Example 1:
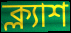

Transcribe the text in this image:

ক্ল্যাশ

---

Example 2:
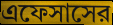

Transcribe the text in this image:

এফেসাসের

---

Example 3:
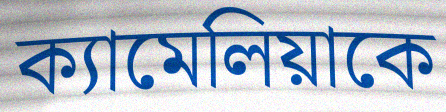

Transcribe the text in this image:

ক্যামেলিয়াকে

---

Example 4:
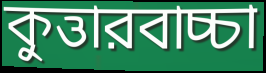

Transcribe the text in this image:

কুত্তারবাচ্চা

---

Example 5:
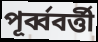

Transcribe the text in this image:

পূর্ব্ববর্ত্তী